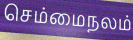
செம்மைநலம்